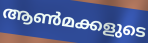
ആൺമക്കളുടെ